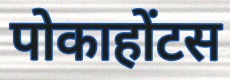
पोकाहोंटस